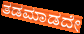
ತಡಮಾಡದೇ